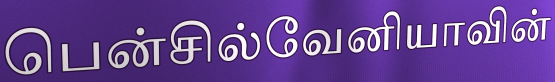
பென்சில்வேனியாவின்